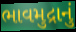
ભાવમુદ્રાનું